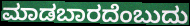
ಮಾಡಬಾರದೆಂಬುದು